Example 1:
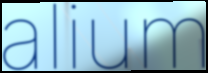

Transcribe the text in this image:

alium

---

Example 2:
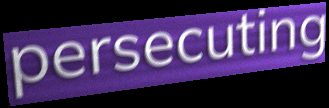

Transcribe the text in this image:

persecuting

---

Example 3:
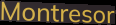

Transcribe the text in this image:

Montresor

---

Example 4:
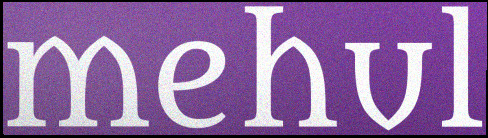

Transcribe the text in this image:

mehul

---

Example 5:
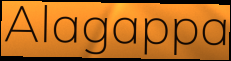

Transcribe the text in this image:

Alagappa